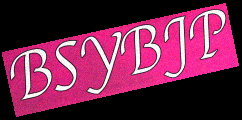
BSYBJP